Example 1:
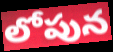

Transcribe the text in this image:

లోపున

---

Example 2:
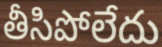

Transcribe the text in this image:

తీసిపోలేదు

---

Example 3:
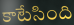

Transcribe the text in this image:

కాటేసింది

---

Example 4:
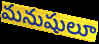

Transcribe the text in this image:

మనుషులూ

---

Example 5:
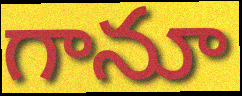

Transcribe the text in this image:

గానూ